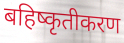
बहिष्कृतीकरण